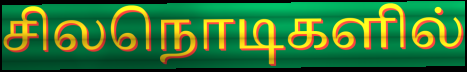
சிலநொடிகளில்